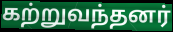
கற்றுவந்தனர்